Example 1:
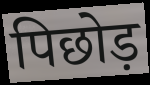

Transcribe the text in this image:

पिछोड़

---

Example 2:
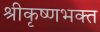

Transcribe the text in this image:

श्रीकृष्णभक्त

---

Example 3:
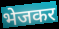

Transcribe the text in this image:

भेजकर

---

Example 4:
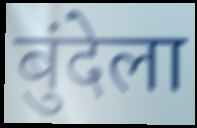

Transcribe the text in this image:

बुंदेला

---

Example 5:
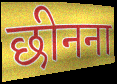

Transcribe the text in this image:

छीनना